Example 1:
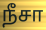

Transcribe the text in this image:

நீசா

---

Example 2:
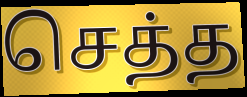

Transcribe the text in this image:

செத்த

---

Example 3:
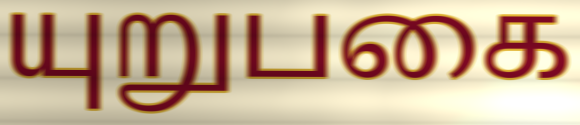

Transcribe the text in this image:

யுறுபகை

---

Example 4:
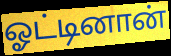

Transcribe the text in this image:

ஓட்டினான்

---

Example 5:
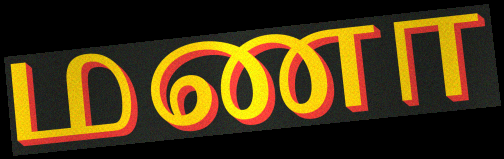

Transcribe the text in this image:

மணா